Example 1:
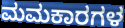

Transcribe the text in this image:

ಮಮಕಾರಗಳ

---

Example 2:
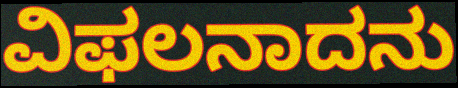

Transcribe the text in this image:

ವಿಫಲನಾದನು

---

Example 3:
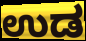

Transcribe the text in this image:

ಉಡ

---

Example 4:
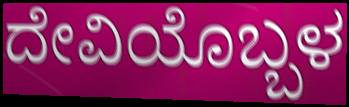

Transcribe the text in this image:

ದೇವಿಯೊಬ್ಬಳ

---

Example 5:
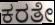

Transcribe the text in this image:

ಕರತೇ